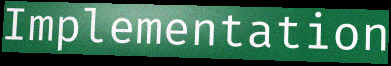
Implementation